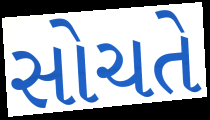
સોચતે